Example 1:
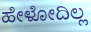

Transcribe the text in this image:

ಹೇಳೋದಿಲ್ಲ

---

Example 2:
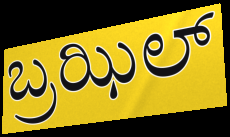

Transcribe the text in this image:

ಬ್ರಝಿಲ್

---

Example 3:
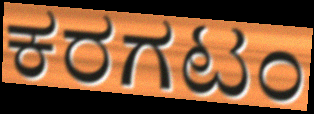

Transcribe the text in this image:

ಕರಗಟಂ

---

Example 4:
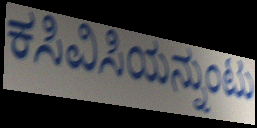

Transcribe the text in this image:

ಕಸಿವಿಸಿಯನ್ನುಂಟು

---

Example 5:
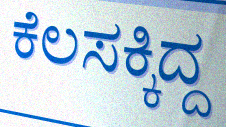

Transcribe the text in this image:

ಕೆಲಸಕ್ಕಿದ್ದ